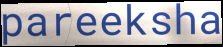
pareeksha